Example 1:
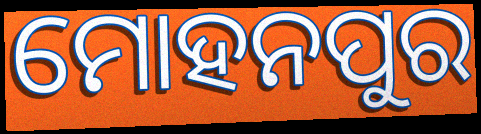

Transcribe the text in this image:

ମୋହନପୁର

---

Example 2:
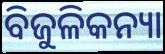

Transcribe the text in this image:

ବିଜୁଳିକନ୍ୟା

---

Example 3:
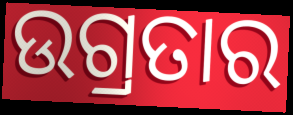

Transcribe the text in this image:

ଉଗ୍ରତାର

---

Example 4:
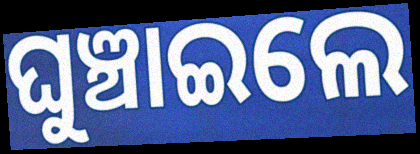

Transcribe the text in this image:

ଘୁଞ୍ଚାଇଲେ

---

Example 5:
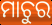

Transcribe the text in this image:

ମାଚୁର